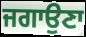
ਜਗਾਉਣਾ